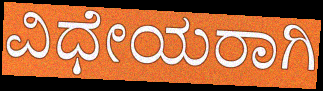
ವಿಧೇಯರಾಗಿ